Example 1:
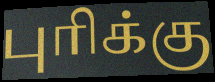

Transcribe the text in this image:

புரிக்கு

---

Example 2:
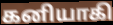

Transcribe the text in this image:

கனியாகி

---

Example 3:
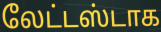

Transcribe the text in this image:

லேட்டஸ்டாக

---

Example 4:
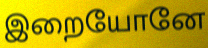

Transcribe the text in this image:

இறையோனே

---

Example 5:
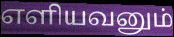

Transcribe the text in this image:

எளியவனும்